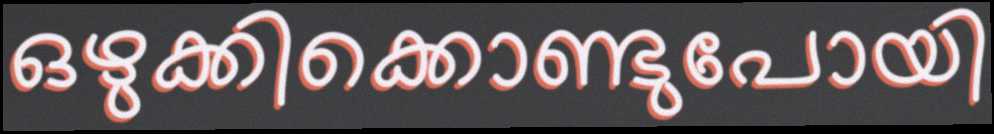
ഒഴുക്കിക്കൊണ്ടുപോയി